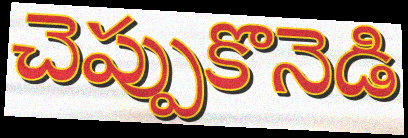
చెప్పుకొనెడి